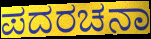
ಪದರಚನಾ